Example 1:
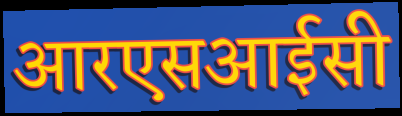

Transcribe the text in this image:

आरएसआईसी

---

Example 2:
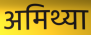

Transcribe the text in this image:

अमिथ्या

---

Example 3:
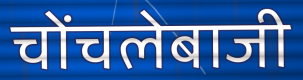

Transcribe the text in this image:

चोंचलेबाजी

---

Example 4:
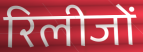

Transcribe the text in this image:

रिलीजों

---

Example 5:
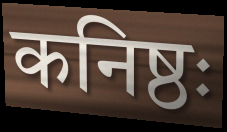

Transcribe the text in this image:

कनिष्ठः